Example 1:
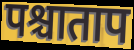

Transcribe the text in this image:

पश्चाताप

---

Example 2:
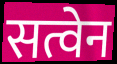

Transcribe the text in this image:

सत्वेन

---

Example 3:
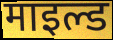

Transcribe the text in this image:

माइल्ड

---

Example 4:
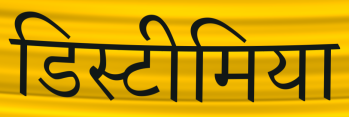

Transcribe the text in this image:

डिस्टीमिया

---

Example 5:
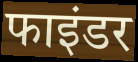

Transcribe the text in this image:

फाइंडर